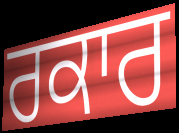
ਰਕਾਰ